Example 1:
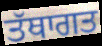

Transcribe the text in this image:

ਤੱਥਾਗਤ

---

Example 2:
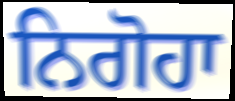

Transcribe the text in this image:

ਨਿਗੋਹਾ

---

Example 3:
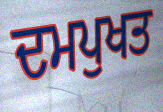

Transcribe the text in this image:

ਦਮਪੁਖਤ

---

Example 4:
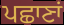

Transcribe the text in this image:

ਪਛਾਣਾਂ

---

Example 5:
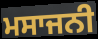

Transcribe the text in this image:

ਮਸਾਜਨੀ